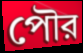
পৌর